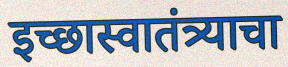
इच्छास्वातंत्र्याचा